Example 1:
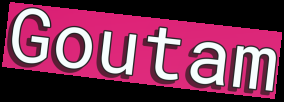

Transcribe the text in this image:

Goutam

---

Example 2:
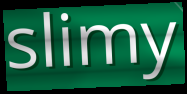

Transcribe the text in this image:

slimy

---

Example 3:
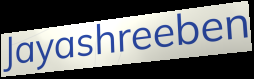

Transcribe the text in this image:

Jayashreeben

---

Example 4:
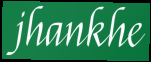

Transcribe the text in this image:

jhankhe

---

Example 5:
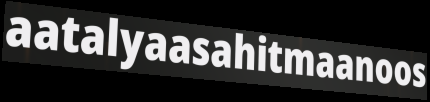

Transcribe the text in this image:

aatalyaasahitmaanoos